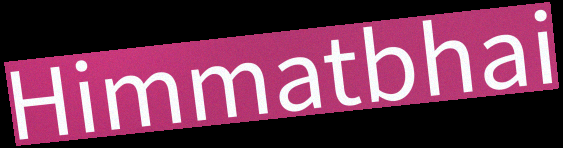
Himmatbhai